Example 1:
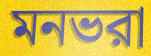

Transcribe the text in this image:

মনভরা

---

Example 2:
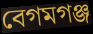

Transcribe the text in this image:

বেগমগঞ্জ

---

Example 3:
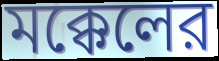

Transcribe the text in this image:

মক্কেলের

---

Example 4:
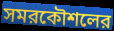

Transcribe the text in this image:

সমরকৌশলের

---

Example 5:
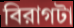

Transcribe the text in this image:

বিরাগটা